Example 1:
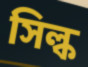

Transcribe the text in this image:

সিল্ক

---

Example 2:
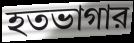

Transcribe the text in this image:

হতভাগার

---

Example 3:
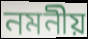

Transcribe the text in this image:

নমনীয়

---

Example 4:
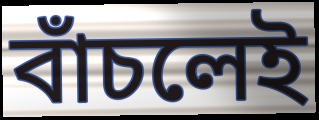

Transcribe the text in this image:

বাঁচলেই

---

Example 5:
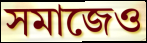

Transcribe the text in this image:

সমাজেও